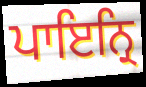
ਪਾਇਨ੍ਰਿ